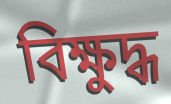
বিক্ষুদ্ধ